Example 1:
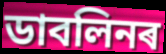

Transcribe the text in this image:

ডাবলিনৰ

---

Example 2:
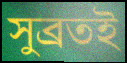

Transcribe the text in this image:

সুব্ৰতই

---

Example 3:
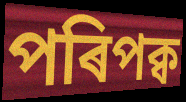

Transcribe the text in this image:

পৰিপক্ব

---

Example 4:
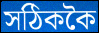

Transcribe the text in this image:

সঠিককৈ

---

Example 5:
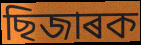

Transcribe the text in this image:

ছিজাৰক